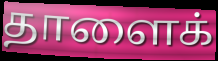
தாளைக்